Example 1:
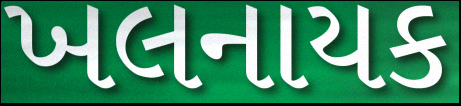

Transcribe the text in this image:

ખલનાયક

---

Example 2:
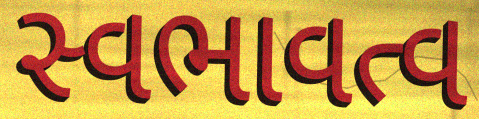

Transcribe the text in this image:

સ્વભાવત્વ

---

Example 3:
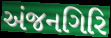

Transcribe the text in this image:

અંજનગિરિ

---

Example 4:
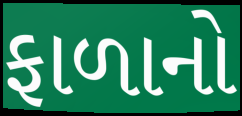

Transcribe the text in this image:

ફાળાનો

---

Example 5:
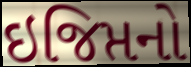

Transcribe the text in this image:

ઇજિપ્તનો